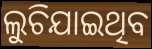
ଲୁଚିଯାଇଥିବ